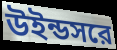
উইন্ডসরে